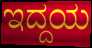
ಇದ್ದಯ